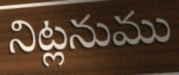
నిట్లనుము